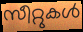
സീറ്റുകൾ